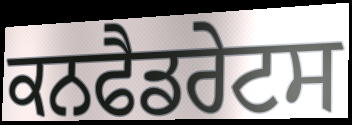
ਕਨਫੈਡਰੇਟਸ